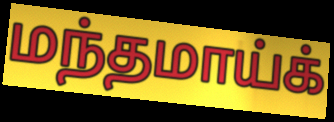
மந்தமாய்க்